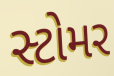
સ્ટોમર